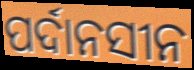
ପର୍ଦାନସୀନ